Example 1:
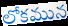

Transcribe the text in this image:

లోకమున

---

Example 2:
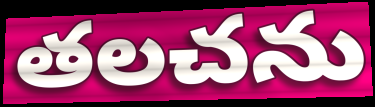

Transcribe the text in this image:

తలచను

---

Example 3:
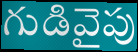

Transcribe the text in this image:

గుడివైపు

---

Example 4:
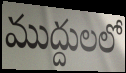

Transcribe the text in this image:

ముద్దులలో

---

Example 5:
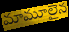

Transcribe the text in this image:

మామూలైన